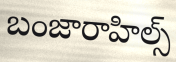
బంజారాహిల్స్